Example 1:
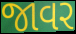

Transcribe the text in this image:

જાવર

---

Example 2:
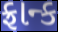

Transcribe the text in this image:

ફ્રાન્ક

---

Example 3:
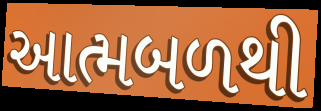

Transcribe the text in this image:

આત્મબળથી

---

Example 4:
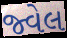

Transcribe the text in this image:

જ્વેલ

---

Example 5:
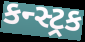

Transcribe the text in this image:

કન્સ્ટ્રક